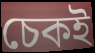
চেকই